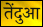
तेंदुआ